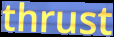
thrust